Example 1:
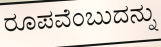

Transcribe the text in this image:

ರೂಪವೆಂಬುದನ್ನು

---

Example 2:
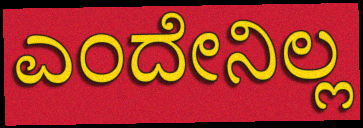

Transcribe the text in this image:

ಎಂದೇನಿಲ್ಲ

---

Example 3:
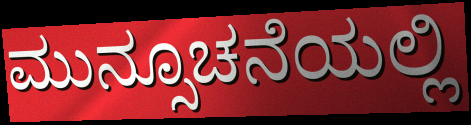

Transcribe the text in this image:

ಮುನ್ಸೂಚನೆಯಲ್ಲಿ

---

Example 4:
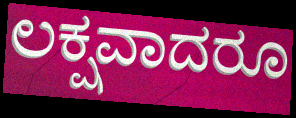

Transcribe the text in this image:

ಲಕ್ಷವಾದರೂ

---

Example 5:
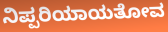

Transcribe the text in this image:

ನಿಪ್ಪರಿಯಾಯತೋವ